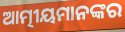
ଆତ୍ମୀୟମାନଙ୍କର